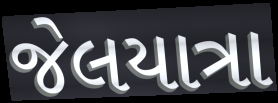
જેલયાત્રા